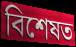
বিশেষত